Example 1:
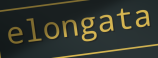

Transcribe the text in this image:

elongata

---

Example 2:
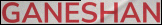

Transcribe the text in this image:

GANESHAN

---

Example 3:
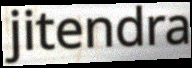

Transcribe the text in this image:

jitendra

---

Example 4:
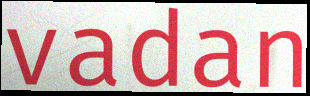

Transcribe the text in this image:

vadan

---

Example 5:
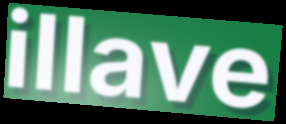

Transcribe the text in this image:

illave